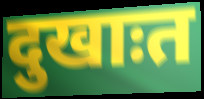
दुखाःत